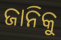
ଜାନିକୁ